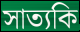
সাত্যকি